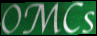
OMCs